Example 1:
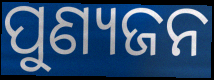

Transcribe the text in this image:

ପୁଣ୍ୟଜନ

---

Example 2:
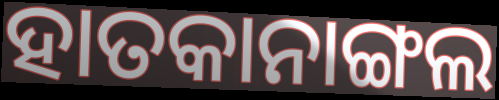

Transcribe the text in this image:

ହାତକାନାଙ୍ଗଲ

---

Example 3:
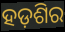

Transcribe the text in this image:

ହଡ଼ଶିର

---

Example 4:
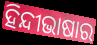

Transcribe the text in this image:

ହିନ୍ଦୀଭାଷାର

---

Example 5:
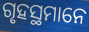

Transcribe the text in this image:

ଗୃହସ୍ଥମାନେ